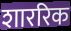
शाररिक